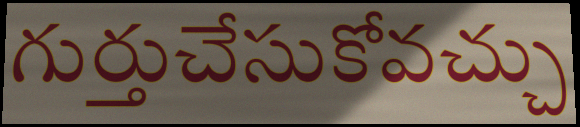
గుర్తుచేసుకోవచ్చు